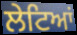
ਲੇਟਿਆਂ